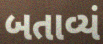
બતાવ્યં